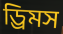
ড্রিমস